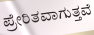
ಪ್ರೇರಿತವಾಗುತ್ತವೆ